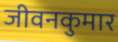
जीवनकुमार